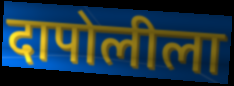
दापोलीला